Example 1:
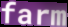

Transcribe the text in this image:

farm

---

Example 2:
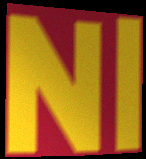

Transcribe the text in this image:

Nl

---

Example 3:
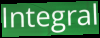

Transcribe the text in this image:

Integral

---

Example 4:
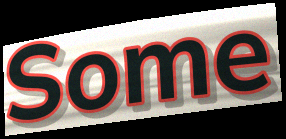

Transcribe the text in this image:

Some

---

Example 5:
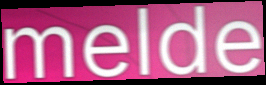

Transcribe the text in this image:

melde